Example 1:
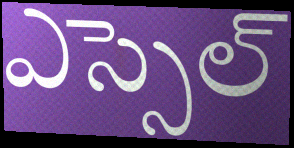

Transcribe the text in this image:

ఎస్సెల్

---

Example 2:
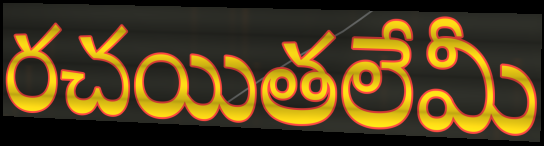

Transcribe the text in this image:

రచయితలేమీ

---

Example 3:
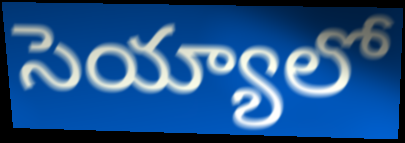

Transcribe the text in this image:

సెయ్యాలో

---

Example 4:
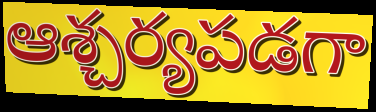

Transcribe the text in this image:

ఆశ్చర్యపడగా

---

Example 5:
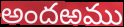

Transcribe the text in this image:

అందఱము